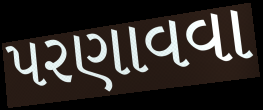
પરણાવવા